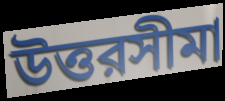
উত্তরসীমা